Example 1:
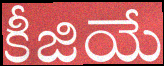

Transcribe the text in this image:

కీజియే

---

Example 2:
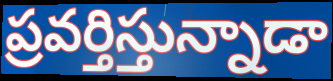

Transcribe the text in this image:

ప్రవర్తిస్తున్నాడా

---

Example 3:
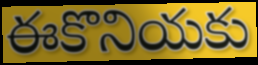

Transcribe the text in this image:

ఈకొనియకు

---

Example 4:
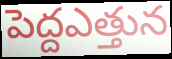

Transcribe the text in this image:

పెద్దఎత్తున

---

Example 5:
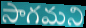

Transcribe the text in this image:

సాగమని